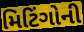
મિટિંગોની